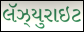
લૅઝ્યુરાઇટ